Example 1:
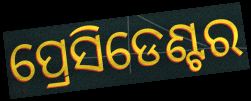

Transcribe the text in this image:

ପ୍ରେସିଡେଣ୍ଟର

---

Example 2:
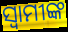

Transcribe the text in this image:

ସ୍ବାମୀଙ୍କ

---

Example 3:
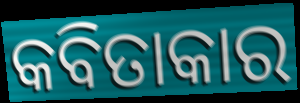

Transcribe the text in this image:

କବିତାକାର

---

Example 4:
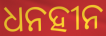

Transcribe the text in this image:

ଧନହୀନ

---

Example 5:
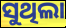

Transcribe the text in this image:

ସୁଥିଲା